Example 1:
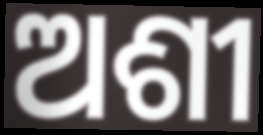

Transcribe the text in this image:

ଅଶୀ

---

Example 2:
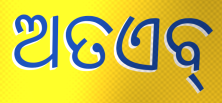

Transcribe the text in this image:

ଅତଏବ୍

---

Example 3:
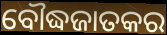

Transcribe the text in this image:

ବୌଦ୍ଧଜାତକର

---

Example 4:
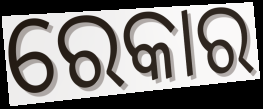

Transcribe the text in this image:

ରେକାର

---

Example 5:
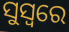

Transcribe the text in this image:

ସୁସ୍ୱରେ